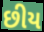
છીય